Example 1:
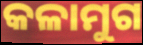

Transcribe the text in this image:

କଳାମୁଗ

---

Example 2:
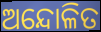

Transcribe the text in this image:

ଅନ୍ଦୋଳିତ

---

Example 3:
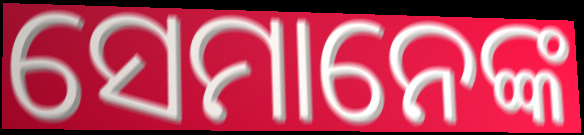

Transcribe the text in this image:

ସେମାନେଙ୍କ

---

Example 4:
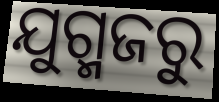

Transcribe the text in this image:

ଯୁଗ୍ମଜରୁ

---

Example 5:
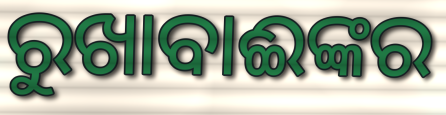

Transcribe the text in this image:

ରୁଖାବାଈଙ୍କର